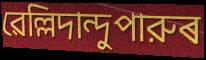
ৱেল্লিদান্দুপাৰুৰ